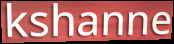
kshanne